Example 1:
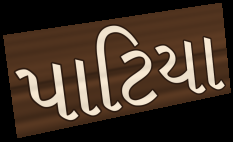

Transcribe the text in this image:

પાટિયા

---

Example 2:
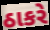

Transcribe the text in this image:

ઠાકરે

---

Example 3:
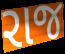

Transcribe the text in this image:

રાજ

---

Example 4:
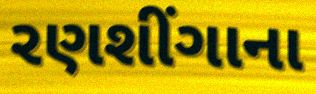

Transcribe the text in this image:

રણશીંગાના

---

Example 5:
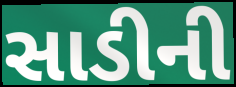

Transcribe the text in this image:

સાડીની